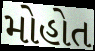
મોહોત